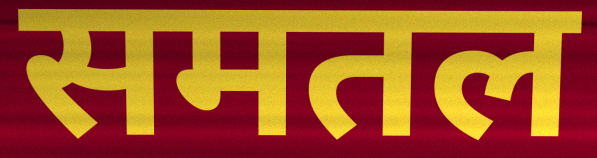
समतल